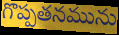
గొప్పతనమును